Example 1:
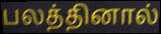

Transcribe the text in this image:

பலத்தினால்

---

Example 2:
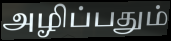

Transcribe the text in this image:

அழிப்பதும்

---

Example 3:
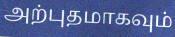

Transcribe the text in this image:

அற்புதமாகவும்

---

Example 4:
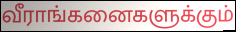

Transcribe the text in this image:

வீராங்கனைகளுக்கும்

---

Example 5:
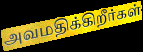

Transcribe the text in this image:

அவமதிக்கிறீர்கள்